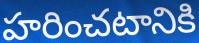
హరించటానికి